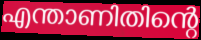
എന്താണിതിന്റെ